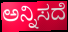
ಅನ್ನಿಸದೆ